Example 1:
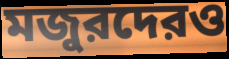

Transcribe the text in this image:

মজুরদেরও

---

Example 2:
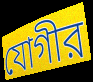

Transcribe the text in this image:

যোগীর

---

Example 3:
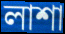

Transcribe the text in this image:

লাশা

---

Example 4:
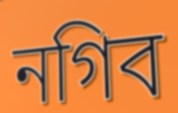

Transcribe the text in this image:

নগিব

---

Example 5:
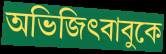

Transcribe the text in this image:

অভিজিৎবাবুকে